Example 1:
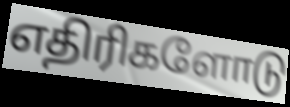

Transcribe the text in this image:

எதிரிகளோடு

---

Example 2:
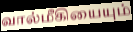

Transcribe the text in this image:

வால்மீகியையும்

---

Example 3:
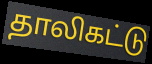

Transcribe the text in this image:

தாலிகட்டு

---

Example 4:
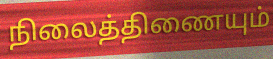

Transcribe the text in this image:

நிலைத்திணையும்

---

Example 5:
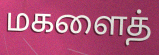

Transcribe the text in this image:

மகளைத்